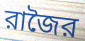
রাজৈর